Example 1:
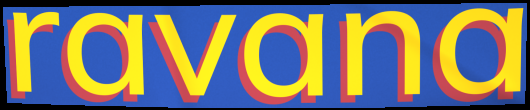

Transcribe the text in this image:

ravana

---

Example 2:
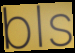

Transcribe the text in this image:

bls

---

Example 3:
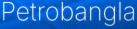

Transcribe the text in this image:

Petrobangla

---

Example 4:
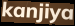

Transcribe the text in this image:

kanjiya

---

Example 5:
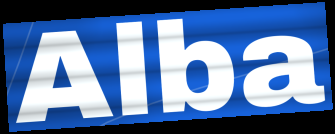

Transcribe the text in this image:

Alba